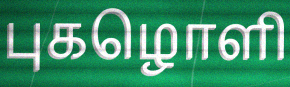
புகழொளி